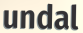
undal